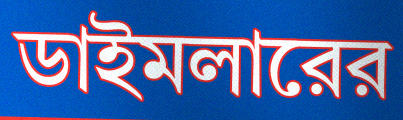
ডাইমলারের